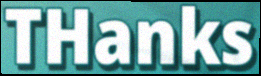
THanks